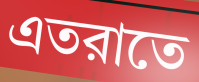
এতরাতে